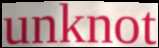
unknot